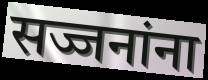
सज्जनांना